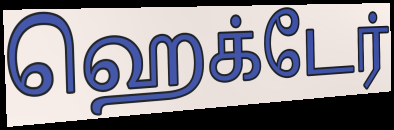
ஹெக்டேர்